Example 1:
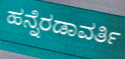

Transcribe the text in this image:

ಹನ್ನೆರಡಾವರ್ತಿ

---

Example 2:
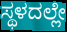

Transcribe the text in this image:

ಸ್ಥಳದಲ್ಲೇ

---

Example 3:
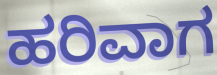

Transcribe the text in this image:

ಹರಿವಾಗ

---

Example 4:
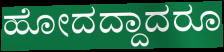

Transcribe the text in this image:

ಹೋದದ್ದಾದರೂ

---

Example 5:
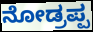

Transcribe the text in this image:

ನೋಡ್ರಪ್ಪ